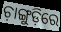
ଚ଼ାଙ୍ଗୁଡ଼ିରେ